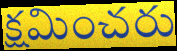
క్షమించరు